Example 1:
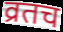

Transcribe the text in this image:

व्रतच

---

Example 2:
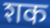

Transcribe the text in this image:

शक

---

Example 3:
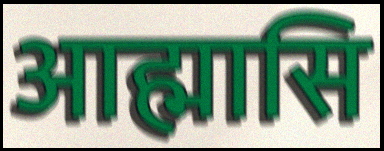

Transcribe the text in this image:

आह्मासि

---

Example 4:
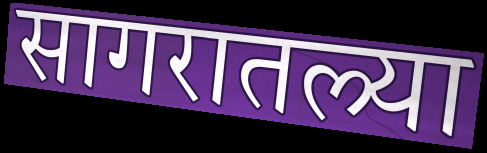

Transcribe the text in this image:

सागरातल्या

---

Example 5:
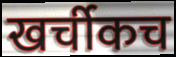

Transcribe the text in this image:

खर्चीकच